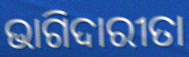
ଭାଗିଦାରୀତା